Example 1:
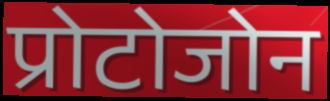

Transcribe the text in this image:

प्रोटोजोन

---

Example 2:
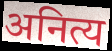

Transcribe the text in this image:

अनित्य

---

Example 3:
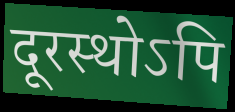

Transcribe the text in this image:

दूरस्थोऽपि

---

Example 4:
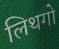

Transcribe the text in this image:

लिथगो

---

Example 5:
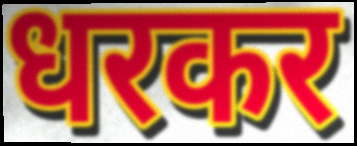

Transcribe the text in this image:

धरकर